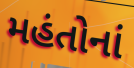
મહંતોનાં